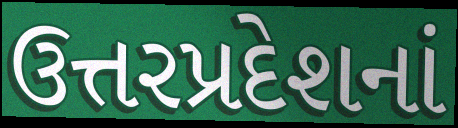
ઉત્તરપ્રદેશનાં